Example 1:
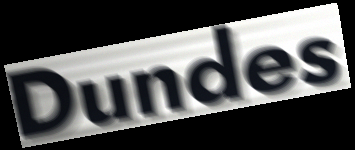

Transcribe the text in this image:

Dundes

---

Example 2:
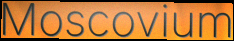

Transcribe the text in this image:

Moscovium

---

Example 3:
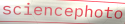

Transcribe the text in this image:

sciencephoto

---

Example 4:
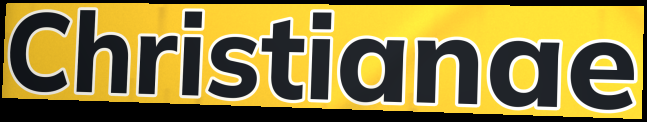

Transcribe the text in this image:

Christianae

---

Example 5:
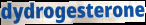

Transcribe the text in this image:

dydrogesterone